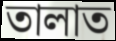
তালাত